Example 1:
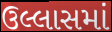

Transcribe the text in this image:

ઉલ્લાસમાં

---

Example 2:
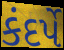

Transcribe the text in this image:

કંદર્પે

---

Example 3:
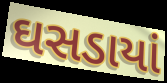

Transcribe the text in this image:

ઘસડાયાં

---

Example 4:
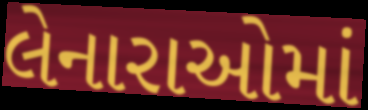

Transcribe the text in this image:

લેનારાઓમાં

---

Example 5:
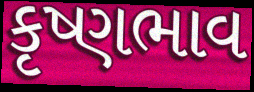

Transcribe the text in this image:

કૃષ્ણભાવ